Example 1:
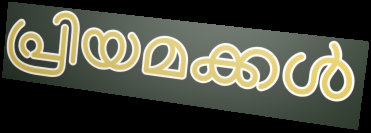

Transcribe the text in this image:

പ്രിയമക്കൾ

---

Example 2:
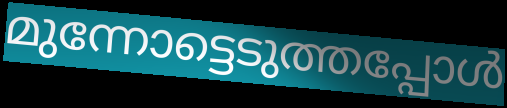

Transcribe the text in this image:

മുന്നോട്ടെടുത്തപ്പോൾ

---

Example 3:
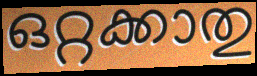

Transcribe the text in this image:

ഒറ്റക്കാതു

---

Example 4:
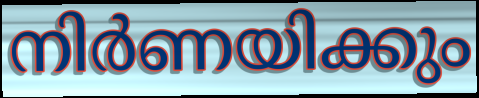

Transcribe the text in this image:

നിർണയിക്കും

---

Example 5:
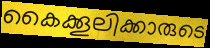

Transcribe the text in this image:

കൈക്കൂലിക്കാരുടെ